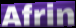
Afrin